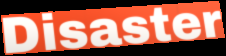
Disaster